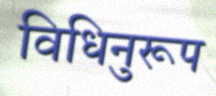
विधिनुरूप